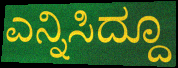
ಎನ್ನಿಸಿದ್ದೂ